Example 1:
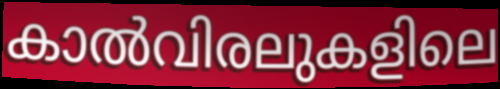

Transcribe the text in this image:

കാൽവിരലുകളിലെ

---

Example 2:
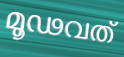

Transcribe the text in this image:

മൂഢവത്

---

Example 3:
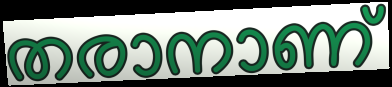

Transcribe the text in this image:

തരാനാണ്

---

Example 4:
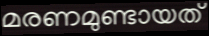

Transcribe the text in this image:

മരണമുണ്ടായത്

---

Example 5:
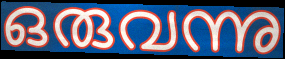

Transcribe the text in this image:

ഒരുവന്നു